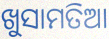
ଖୁସାମତିଆ